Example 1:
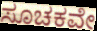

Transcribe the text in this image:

ಸೂಚಕವೇ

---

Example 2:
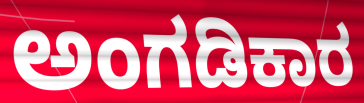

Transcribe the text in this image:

ಅಂಗಡಿಕಾರ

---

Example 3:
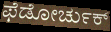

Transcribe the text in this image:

ಫೆಡೋರ್ಚುಕ್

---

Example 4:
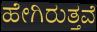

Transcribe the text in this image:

ಹೇಗಿರುತ್ತವೆ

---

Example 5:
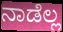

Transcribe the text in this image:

ನಾಡೆಲ್ಲ